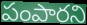
పంపారని